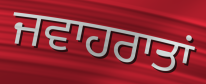
ਜਵਾਹਰਾਤਾਂ